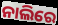
ନାଲିରେ